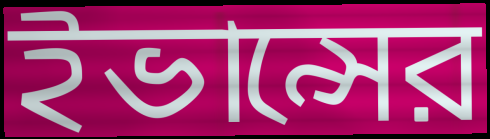
ইভান্সের